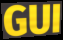
GUI